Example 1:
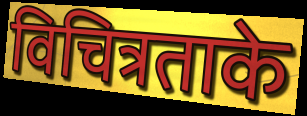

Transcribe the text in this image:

विचित्रताके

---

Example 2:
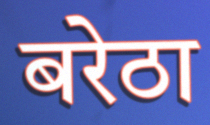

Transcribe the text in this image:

बरेठा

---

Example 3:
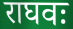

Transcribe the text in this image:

राघवः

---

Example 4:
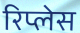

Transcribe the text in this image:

रिप्लेस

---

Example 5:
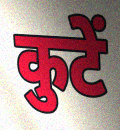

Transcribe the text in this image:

कुटें